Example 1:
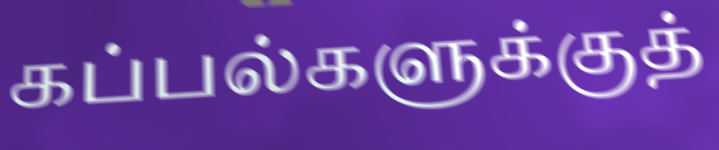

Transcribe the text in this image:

கப்பல்களுக்குத்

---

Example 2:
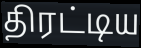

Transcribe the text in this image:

திரட்டிய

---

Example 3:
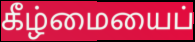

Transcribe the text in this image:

கீழ்மையைப்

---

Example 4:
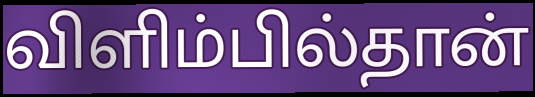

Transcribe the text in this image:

விளிம்பில்தான்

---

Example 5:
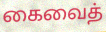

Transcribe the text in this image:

கைவைத்